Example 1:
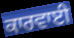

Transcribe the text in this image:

ਕਾਰਵਾਈ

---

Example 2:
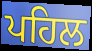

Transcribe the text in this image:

ਪਹਿਲ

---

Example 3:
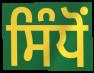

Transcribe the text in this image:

ਸਿੰਧੋਂ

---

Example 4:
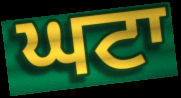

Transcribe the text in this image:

ਘਟਾ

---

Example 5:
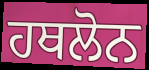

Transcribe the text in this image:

ਹਥਲੋਨ